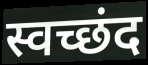
स्वच्छंद